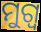
ମୁଗ୍ୱ